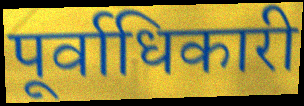
पूर्वाधिकारी